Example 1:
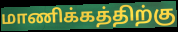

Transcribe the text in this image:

மாணிக்கத்திற்கு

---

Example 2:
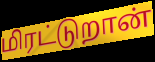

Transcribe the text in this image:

மிரட்டுறான்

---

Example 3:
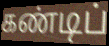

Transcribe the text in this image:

கண்டிப்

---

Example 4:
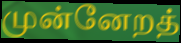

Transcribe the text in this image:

முன்னேறத்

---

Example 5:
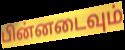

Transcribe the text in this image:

பின்னடைவும்